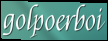
golpoerboi